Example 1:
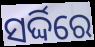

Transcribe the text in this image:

ସର୍ଦ୍ଦିରେ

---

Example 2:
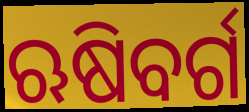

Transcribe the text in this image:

ଋଷିବର୍ଗ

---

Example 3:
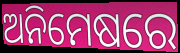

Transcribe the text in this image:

ଅନିମେଷରେ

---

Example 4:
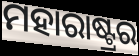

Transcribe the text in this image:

ମହାରାଷ୍ଟ୍ରର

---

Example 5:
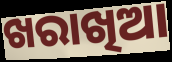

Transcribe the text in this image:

ଖରାଖିଆ